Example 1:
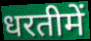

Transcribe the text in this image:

धरतीमें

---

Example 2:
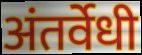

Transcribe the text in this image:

अंतर्वेधी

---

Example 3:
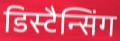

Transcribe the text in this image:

डिस्टैन्सिंग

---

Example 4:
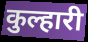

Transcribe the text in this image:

कुल्हारी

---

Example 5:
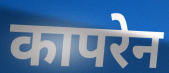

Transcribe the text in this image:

कापरेन